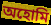
অহোমি